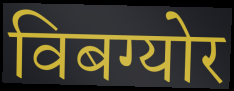
विबग्योर